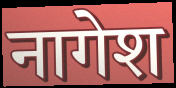
नागेश